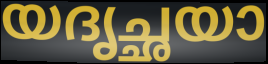
യദൃച്ഛയാ